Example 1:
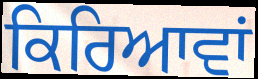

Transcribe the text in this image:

ਕਿਰਿਆਵਾਂ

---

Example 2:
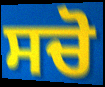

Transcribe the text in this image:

ਸਚੋ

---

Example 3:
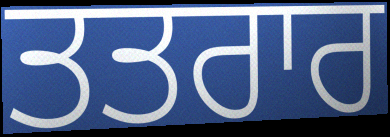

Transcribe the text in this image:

ਤਤਰਾਰ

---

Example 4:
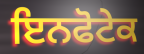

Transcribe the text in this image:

ਇਨਫੋਟੇਕ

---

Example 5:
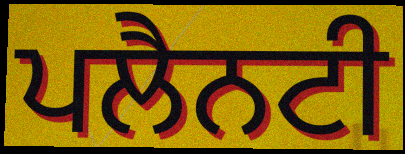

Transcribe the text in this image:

ਪਲੈਨਟੀ